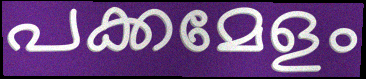
പക്കമേളം